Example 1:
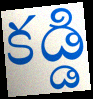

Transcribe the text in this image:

కడ్డి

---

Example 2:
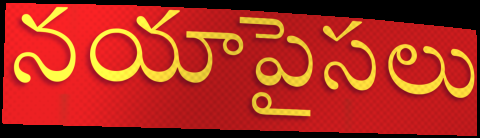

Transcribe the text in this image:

నయాపైసలు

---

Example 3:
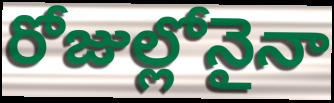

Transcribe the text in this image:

రోజుల్లోనైనా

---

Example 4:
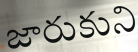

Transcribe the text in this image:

జారుకుని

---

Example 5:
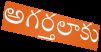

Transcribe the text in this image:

అగర్తలాకు